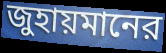
জুহায়মানের